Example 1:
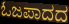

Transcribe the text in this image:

ಓಜಪಾದದ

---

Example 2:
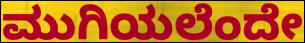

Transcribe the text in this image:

ಮುಗಿಯಲೆಂದೇ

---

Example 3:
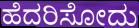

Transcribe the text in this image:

ಹೆದರಿಸೋದು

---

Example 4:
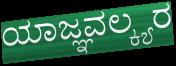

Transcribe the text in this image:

ಯಾಜ್ಞವಲ್ಕ್ಯರ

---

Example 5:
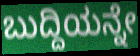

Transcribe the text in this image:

ಬುದ್ದಿಯನ್ನೇ